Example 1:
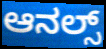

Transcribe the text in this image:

ಆನಲ್ಸ್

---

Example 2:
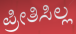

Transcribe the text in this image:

ಪ್ರೀತಿಸಿಲ್ಲ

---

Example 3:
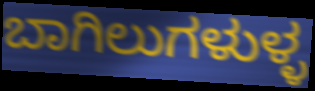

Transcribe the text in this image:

ಬಾಗಿಲುಗಳುಳ್ಳ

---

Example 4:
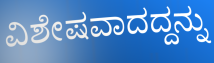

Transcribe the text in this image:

ವಿಶೇಷವಾದದ್ದನ್ನು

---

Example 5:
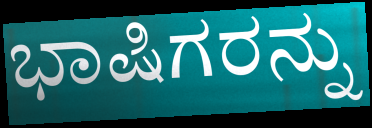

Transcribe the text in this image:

ಭಾಷಿಗರನ್ನು